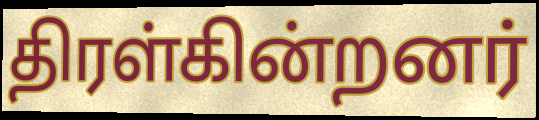
திரள்கின்றனர்